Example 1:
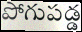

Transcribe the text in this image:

పోగుపడ్డ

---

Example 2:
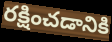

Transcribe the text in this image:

రక్షించడానికి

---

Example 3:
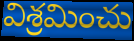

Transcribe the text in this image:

విశ్రమించు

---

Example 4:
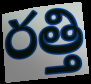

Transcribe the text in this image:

రత్తి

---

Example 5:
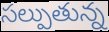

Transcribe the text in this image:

సల్పుతున్న